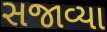
સજાવ્યા